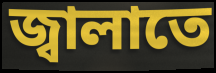
জ্বালাতে